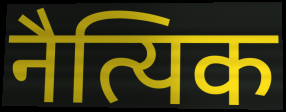
नैत्यिक